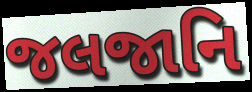
જલજાનિ